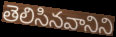
తెలిసినవానిని